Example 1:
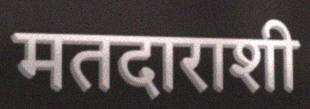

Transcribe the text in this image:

मतदाराशी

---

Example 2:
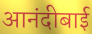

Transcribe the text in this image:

आनंदीबाई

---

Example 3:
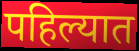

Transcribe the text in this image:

पहिल्यात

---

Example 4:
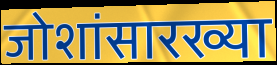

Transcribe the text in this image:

जोशांसारख्या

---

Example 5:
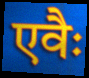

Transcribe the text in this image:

एवैः